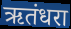
ऋतंधरा